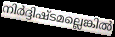
നിർദ്ദിഷ്ടമല്ലെങ്കിൽ